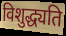
विशुद्ध्यति